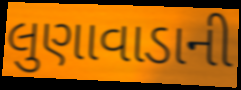
લુણાવાડાની